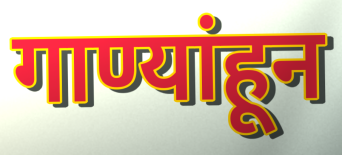
गाण्यांहून